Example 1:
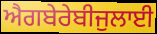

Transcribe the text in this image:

ਐਗਬੇਰੇਬੀਜੁਲਾਈ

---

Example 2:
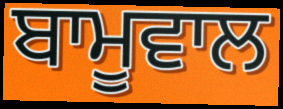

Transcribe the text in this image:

ਬਾਮੂਵਾਲ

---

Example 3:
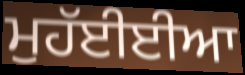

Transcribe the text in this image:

ਮੁਹੱਈਈਆ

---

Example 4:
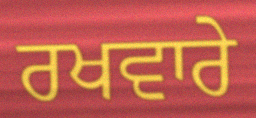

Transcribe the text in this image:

ਰਖਵਾਰੇ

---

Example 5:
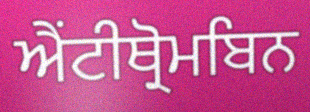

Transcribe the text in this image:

ਐਂਟੀਥ੍ਰੋਮਬਿਨ